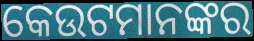
କେଉଟମାନଙ୍କର